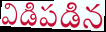
విడిపడిన